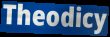
Theodicy